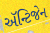
ઍન્ટિજેન